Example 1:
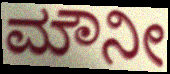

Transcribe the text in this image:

ಮೌನೀ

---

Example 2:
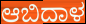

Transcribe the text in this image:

ಆಬಿದಾಳ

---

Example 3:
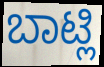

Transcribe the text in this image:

ಬಾಟ್ಲಿ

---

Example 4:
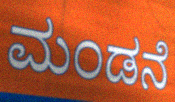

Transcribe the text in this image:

ಮಂಡನೆ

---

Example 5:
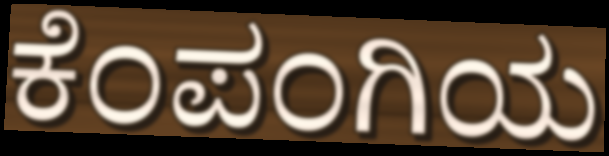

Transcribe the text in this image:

ಕೆಂಪಂಗಿಯ